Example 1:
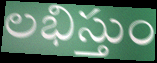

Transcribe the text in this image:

లభిస్తుం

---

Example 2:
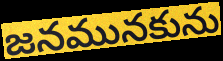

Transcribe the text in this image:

జనమునకును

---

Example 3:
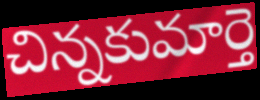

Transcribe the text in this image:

చిన్నకుమార్తె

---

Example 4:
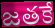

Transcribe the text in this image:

జతకే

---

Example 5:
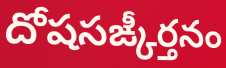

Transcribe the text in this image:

దోషసఙ్కీర్తనం